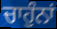
ਚਾਹੁੰਨਾਂ